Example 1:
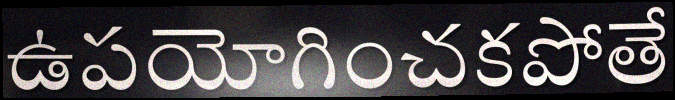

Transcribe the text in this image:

ఉపయోగించకపోతే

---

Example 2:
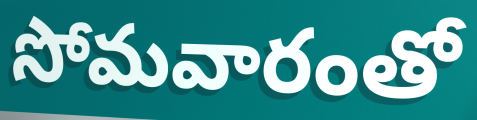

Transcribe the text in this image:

సోమవారంతో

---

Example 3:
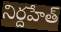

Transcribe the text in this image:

నిర్దహేత్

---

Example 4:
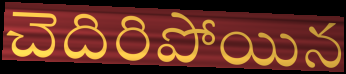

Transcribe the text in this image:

చెదిరిపోయిన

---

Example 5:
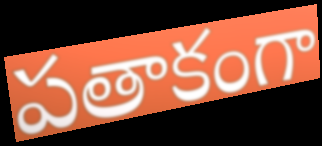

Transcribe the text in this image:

పతాకంగా